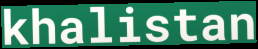
khalistan